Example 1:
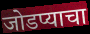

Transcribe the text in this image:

जोडप्याचा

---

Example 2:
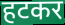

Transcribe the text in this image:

हटकर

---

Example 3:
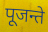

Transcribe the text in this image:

पूजन्ते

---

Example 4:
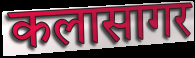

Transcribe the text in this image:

कलासागर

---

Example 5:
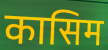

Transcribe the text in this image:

कासिम